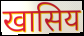
खासिय